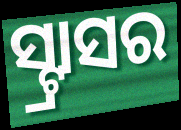
ସ୍ଟ୍ରାସର